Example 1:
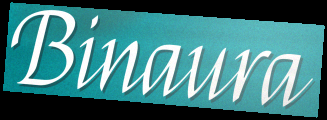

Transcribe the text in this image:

Binaura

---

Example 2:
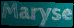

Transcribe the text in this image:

Maryse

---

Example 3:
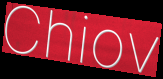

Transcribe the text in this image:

Chiov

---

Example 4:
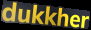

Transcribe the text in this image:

dukkher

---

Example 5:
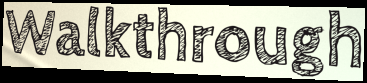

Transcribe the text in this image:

Walkthrough